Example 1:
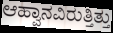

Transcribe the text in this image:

ಆಹ್ವಾನವಿರುತ್ತಿತ್ತು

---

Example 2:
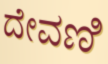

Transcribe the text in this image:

ದೇವಣಿ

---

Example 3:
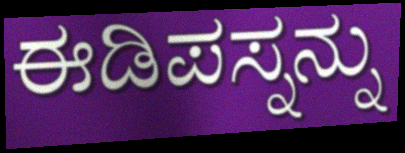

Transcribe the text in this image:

ಈಡಿಪಸ್ನನ್ನು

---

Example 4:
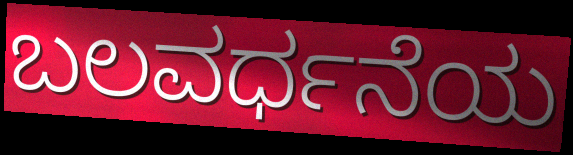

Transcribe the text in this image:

ಬಲವರ್ಧನೆಯ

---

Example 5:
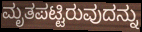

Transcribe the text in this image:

ಮೃತಪಟ್ಟಿರುವುದನ್ನು